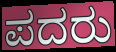
ಪದರು